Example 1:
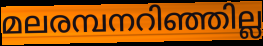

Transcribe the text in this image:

മലരമ്പനറിഞ്ഞില്ല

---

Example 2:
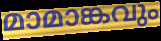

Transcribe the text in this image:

മാമാങ്കവും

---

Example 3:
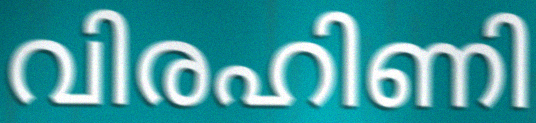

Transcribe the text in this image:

വിരഹിണി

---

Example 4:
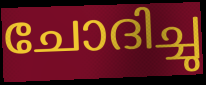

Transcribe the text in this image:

ചോദിച്ചു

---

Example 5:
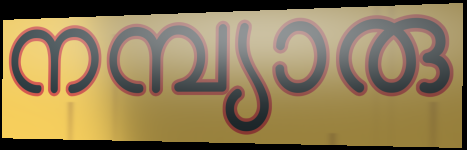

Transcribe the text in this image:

നമ്പ്യാരു